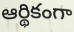
ఆర్థికంగా